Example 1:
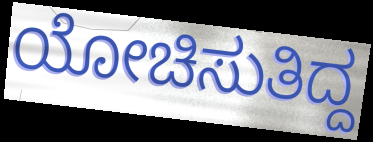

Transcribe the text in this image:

ಯೋಚಿಸುತಿದ್ದ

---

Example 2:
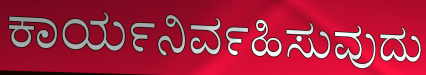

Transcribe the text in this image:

ಕಾರ್ಯನಿರ್ವಹಿಸುವುದು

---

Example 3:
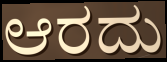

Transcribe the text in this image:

ಆರದು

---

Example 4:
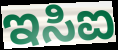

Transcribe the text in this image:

ಇಸಿಐ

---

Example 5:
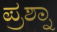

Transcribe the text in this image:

ಪ್ರಶ್ನಾ